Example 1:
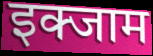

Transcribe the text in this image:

इक्जाम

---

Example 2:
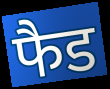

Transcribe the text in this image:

फैड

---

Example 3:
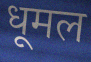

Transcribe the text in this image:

धूमल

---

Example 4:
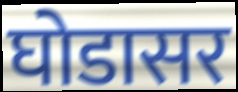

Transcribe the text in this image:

घोडासर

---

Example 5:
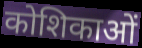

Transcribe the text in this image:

कोशिकाओं